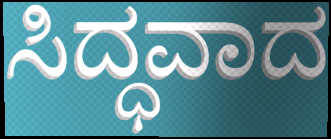
ಸಿದ್ಧವಾದ